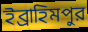
ইব্রাহিমপুর